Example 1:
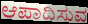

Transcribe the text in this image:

ಆಪಾದಿಸುವ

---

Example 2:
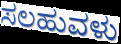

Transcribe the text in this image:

ಸಲಹುವಳು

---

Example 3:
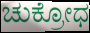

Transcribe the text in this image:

ಚುಕ್ರೋಧ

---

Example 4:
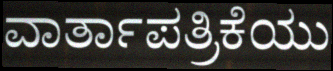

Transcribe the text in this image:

ವಾರ್ತಾಪತ್ರಿಕೆಯು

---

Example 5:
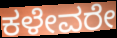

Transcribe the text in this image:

ಕಳೇವರೇ